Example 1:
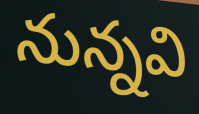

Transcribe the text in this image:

నున్నవి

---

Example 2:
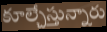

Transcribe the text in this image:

కూల్చేస్తున్నారు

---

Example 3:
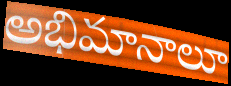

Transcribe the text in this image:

అభిమానాలూ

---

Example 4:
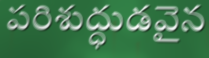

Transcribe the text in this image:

పరిశుద్ధుడవైన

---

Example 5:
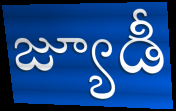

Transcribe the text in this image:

జ్యూడీ